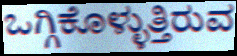
ಒಗ್ಗಿಕೊಳ್ಳುತ್ತಿರುವ